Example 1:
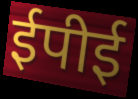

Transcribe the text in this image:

ईपीई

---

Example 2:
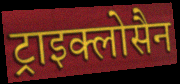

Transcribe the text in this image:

ट्राइक्लोसैन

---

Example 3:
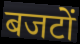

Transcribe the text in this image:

बजटों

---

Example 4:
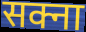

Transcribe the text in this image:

सक्ना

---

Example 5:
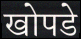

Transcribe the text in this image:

खोपडे